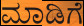
ಮಾಡಿಗೆ